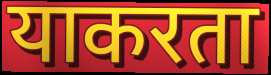
याकरता